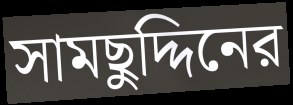
সামছুদ্দিনের